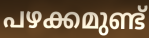
പഴക്കമുണ്ട്